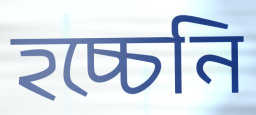
হচ্চেনি